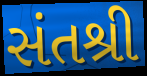
સંતશ્રી